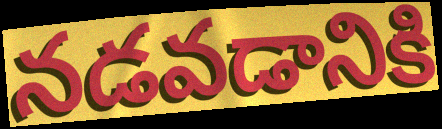
నడవడానికి